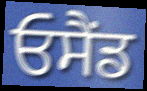
ਓਸੈਂਡ